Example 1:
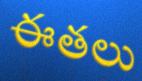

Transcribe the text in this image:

ఈతలు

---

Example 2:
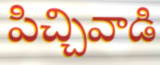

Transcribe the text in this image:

పిచ్చివాడి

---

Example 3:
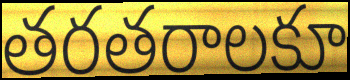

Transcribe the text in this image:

తరతరాలకూ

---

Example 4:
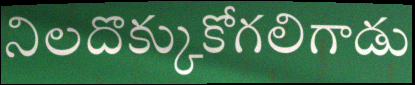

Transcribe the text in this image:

నిలదొక్కుకోగలిగాడు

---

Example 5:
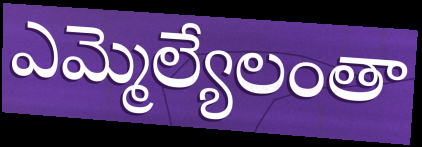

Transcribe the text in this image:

ఎమ్మెల్యేలంతా